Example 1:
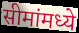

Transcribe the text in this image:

सीमांमध्ये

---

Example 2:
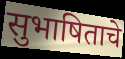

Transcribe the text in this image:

सुभाषिताचे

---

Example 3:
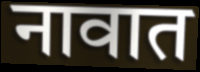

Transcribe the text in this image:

नावात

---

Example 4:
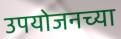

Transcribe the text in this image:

उपयोजनच्या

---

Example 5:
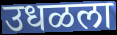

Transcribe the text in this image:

उधळला